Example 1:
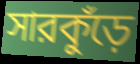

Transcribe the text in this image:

সারকুঁড়ে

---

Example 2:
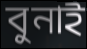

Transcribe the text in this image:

বুনাই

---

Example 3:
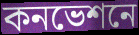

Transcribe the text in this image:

কনভেশনে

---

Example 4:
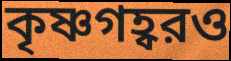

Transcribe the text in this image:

কৃষ্ণগহ্বরও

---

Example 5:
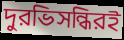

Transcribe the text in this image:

দুরভিসন্ধিরই